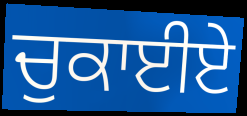
ਚੁਕਾਈਏ